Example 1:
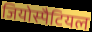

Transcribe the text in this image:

जियोस्पैटियल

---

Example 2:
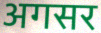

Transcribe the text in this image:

अगसर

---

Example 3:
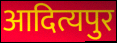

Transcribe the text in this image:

आदित्यपुर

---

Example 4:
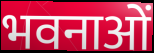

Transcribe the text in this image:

भवनाओं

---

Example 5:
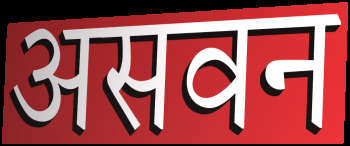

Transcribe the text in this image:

असवन